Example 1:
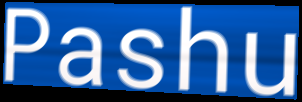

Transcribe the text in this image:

Pashu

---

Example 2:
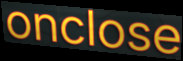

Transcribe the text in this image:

onclose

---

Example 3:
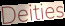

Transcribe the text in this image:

Deities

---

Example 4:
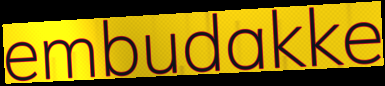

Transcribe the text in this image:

embudakke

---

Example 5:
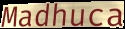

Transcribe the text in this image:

Madhuca